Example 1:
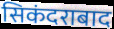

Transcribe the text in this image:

सिकंदराबाद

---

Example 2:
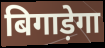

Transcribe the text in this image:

बिगाड़ेगा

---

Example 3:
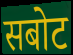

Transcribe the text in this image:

सबोट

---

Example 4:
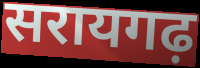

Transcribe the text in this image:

सरायगढ़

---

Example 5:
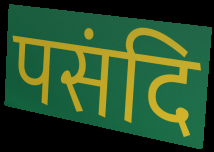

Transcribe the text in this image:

पसंदि